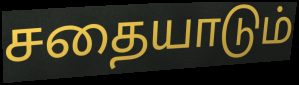
சதையாடும்